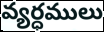
వ్యర్ధములు